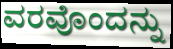
ವರವೊಂದನ್ನು